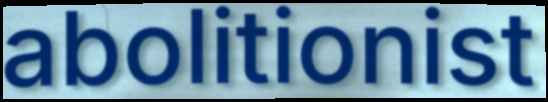
abolitionist